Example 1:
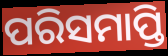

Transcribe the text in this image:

ପରିସମାପ୍ତି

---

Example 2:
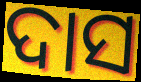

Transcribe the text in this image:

ଦାସ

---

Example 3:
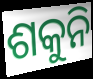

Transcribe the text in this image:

ଶକୁନି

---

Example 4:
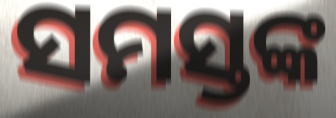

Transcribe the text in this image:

ସମସ୍ତଙ୍କ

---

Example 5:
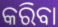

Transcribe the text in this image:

କରିବା